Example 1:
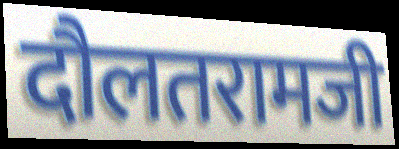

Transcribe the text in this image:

दौलतरामजी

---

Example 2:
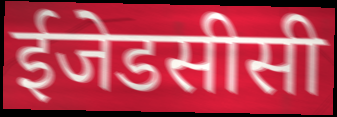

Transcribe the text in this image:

ईजेडसीसी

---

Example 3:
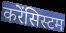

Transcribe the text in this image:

करेंसिस्टम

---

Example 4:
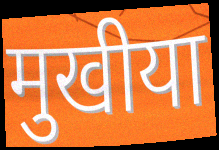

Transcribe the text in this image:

मुखीया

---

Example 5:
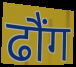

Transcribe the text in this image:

ढौंग